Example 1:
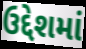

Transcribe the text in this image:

ઉદ્દેશમાં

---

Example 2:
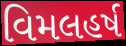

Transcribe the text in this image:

વિમલહર્ષ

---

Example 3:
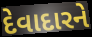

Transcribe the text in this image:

દેવાદારને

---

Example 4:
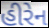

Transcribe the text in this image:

હીરેન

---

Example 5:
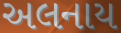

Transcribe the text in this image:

અલનાય